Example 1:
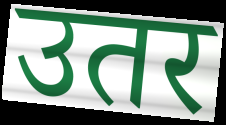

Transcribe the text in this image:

उतर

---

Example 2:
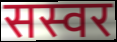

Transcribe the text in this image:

सस्वर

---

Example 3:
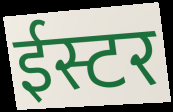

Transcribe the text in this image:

ईस्टर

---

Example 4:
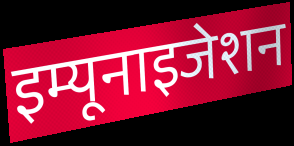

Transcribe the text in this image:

इम्यूनाइजेशन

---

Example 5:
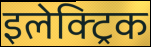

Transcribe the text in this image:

इलेक्ट्रिक